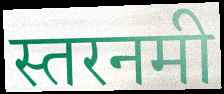
स्तरनमी